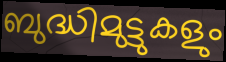
ബുദ്ധിമുട്ടുകളും